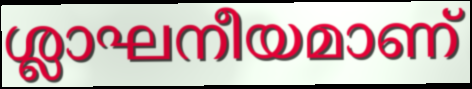
ശ്ലാഘനീയമാണ്